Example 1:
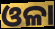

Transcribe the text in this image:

ଓଳା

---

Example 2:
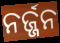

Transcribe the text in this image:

ନର୍ଜ୍ଜନ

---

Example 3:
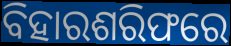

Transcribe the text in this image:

ବିହାରଶରିଫରେ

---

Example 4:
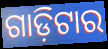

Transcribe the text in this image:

ଗାଡ଼ିଟାର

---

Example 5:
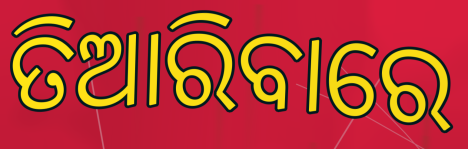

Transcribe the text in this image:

ତିଆରିବାରେ